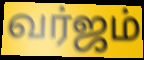
வர்ஜம்